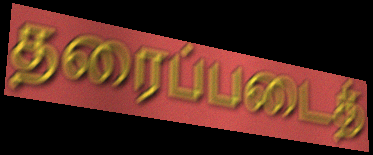
தரைப்படைத்